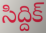
సిద్దిక్